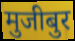
मुजीबुर